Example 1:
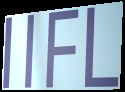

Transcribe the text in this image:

IIFL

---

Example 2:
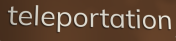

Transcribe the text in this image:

teleportation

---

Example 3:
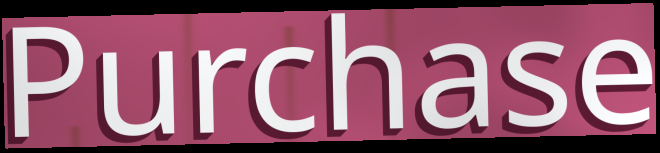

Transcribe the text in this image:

Purchase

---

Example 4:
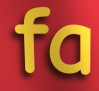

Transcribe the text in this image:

fa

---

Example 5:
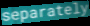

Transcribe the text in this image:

separately